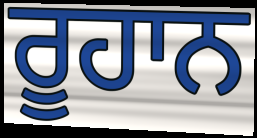
ਰੂਹਾਨ